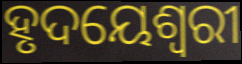
ହୃଦୟେଶ୍ୱରୀ